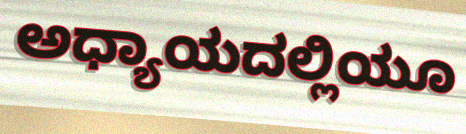
ಅಧ್ಯಾಯದಲ್ಲಿಯೂ